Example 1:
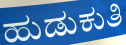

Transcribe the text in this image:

ಹುಡುಕುತಿ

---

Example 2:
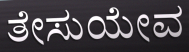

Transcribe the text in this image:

ತೇಸುಯೇವ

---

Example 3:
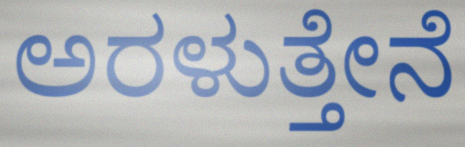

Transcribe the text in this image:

ಅರಳುತ್ತೇನೆ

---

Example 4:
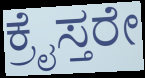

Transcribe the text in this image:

ಕ್ರೈಸ್ತರೇ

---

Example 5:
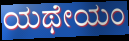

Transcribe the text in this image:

ಯಥೇಯಂ